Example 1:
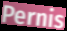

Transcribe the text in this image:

Pernis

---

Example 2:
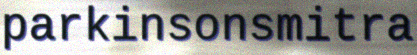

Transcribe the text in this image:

parkinsonsmitra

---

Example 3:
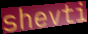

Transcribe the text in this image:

shevti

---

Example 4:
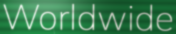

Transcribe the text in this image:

Worldwide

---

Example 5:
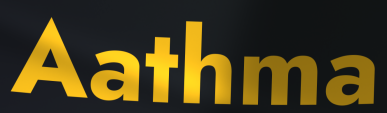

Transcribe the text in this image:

Aathma